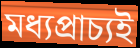
মধ্যপ্রাচ্যই